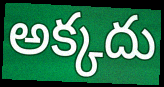
అక్కదు